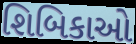
શિબિકાઓ